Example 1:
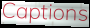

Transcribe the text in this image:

Captions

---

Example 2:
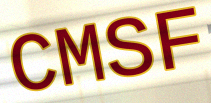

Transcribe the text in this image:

CMSF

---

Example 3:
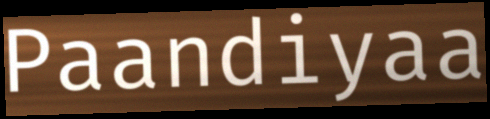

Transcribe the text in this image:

Paandiyaa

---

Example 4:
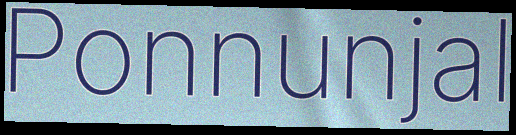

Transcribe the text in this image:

Ponnunjal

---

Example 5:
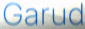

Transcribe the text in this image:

Garud